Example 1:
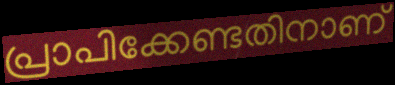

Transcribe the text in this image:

പ്രാപിക്കേണ്ടതിനാണ്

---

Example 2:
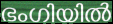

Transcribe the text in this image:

ഭംഗിയിൽ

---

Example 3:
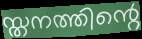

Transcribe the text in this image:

സ്തനത്തിന്റെ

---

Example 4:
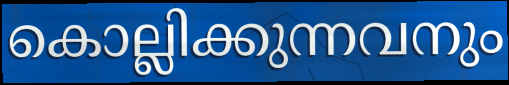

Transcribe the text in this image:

കൊല്ലിക്കുന്നവനും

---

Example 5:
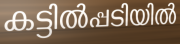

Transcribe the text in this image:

കട്ടിൽപ്പടിയിൽ